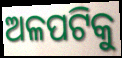
ଅଳପଟିକୁ